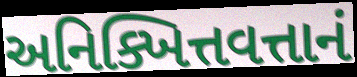
અનિક્ખિત્તવત્તાનં